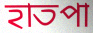
হাতপা